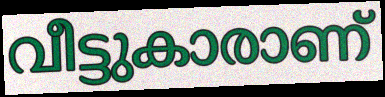
വീട്ടുകാരാണ്